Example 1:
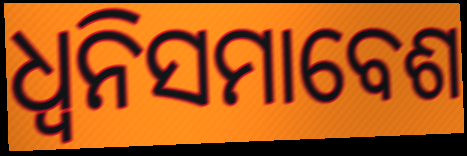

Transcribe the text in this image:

ଧ୍ୱନିସମାବେଶ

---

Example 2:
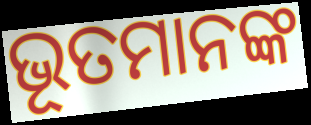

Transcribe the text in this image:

ଭୂତମାନଙ୍କ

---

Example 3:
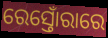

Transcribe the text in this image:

ରେସ୍ତୋଁରାରେ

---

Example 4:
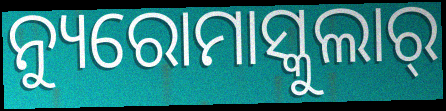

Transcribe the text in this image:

ନ୍ୟୁରୋମାସ୍କୁଲାର୍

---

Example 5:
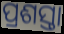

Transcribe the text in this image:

ପ୍ରଶସ୍ତା